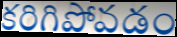
కరిగిపోవడం